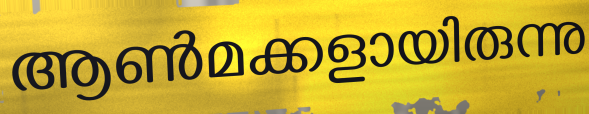
ആൺമക്കളായിരുന്നു